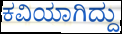
ಕವಿಯಾಗಿದ್ದು